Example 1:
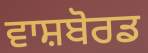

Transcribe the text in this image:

ਵਾਸ਼ਬੋਰਡ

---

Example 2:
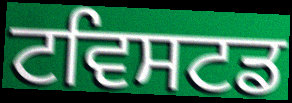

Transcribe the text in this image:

ਟਵਿਸਟਡ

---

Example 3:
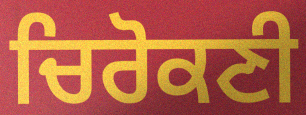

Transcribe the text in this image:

ਚਿਰੋਕਣੀ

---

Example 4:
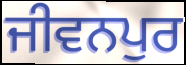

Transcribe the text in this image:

ਜੀਵਨਪੁਰ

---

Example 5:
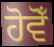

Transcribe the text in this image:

ਹੋਵੋਁ